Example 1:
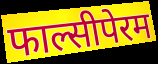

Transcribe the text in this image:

फाल्सीपेरम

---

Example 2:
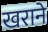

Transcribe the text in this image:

खराने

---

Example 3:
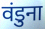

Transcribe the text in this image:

वंडुना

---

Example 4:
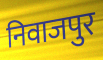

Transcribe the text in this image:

निवाजपुर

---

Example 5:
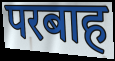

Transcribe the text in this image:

परबाह